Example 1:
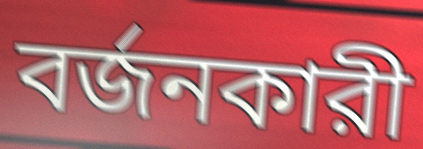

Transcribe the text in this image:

বর্জনকারী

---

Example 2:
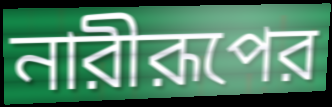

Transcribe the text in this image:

নারীরূপের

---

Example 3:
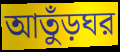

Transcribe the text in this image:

আতুঁড়ঘর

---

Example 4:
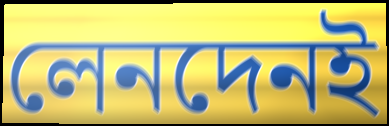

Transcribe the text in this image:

লেনদেনই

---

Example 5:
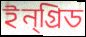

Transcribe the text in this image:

ইন্‌গ্রিড